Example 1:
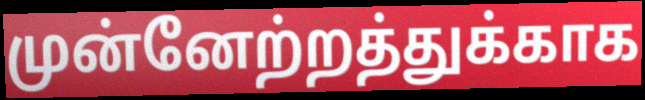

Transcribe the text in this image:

முன்னேற்றத்துக்காக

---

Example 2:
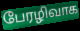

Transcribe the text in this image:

பேரழிவாக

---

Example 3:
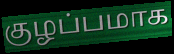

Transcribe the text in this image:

குழப்பமாக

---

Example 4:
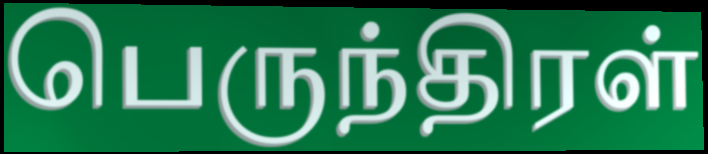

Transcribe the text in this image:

பெருந்திரள்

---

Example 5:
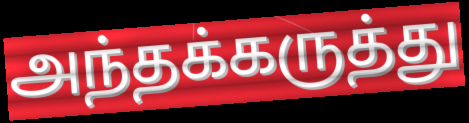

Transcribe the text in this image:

அந்தக்கருத்து